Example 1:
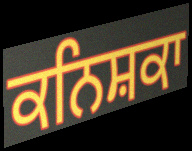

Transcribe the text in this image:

ਕਨਿਸ਼ਕਾ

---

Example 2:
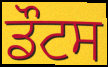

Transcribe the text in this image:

ਡੌਟਸ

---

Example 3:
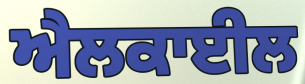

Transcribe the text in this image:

ਐਲਕਾਈਲ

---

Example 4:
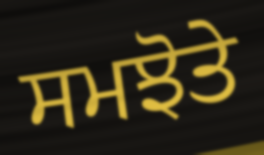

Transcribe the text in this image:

ਸਮਝੋਤੇ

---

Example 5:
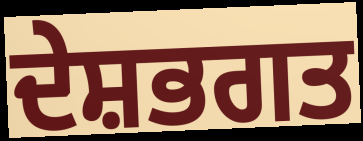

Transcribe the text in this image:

ਦੇਸ਼ਭਗਤ